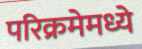
परिक्रमेमध्ये